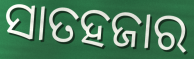
ସାତହଜାର